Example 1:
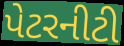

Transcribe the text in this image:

પેટરનીટી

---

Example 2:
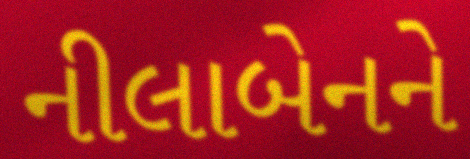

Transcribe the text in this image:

નીલાબેનને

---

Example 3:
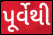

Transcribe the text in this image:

પૂર્વેથી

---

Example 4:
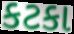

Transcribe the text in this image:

કટકા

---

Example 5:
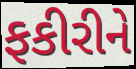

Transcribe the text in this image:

ફકીરીને